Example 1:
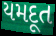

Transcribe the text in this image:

યમદૂત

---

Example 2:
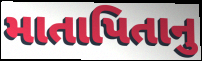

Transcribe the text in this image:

માતાપિતાનુ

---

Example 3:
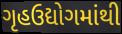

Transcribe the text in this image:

ગૃહઉદ્યોગમાંથી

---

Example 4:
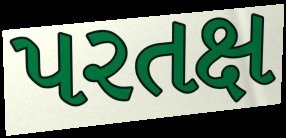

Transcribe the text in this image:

પરતક્ષ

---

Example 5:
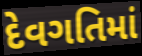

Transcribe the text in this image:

દેવગતિમાં